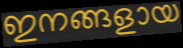
ഇനങ്ങളായ